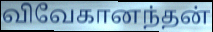
விவேகானந்தன்